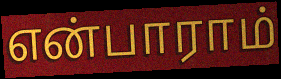
என்பாராம்